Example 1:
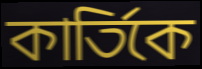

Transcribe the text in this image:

কাৰ্তিকে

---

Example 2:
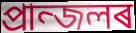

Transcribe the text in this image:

প্ৰান্জলৰ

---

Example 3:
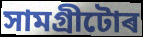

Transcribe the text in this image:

সামগ্ৰীটোৰ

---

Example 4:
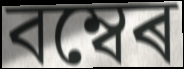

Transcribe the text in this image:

বম্বেৰ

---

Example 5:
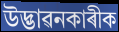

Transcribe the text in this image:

উদ্ভাৱনকাৰীক